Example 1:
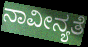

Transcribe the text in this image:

ನಾವೀನ್ಯತೆ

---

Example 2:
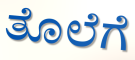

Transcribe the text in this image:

ತೊಲೆಗೆ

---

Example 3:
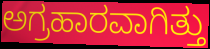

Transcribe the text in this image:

ಅಗ್ರಹಾರವಾಗಿತ್ತು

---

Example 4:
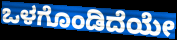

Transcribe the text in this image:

ಒಳಗೊಂಡಿದೆಯೇ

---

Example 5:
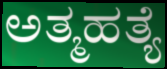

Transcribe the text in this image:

ಅತ್ಮಹತ್ಯೆ